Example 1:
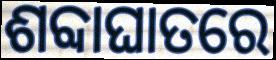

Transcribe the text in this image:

ଶବ୍ଦାଘାତରେ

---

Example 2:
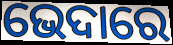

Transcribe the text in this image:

ଭେଦାରେ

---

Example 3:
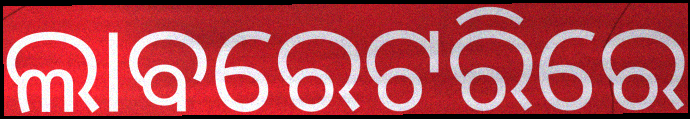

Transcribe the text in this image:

ଲାବରେଟରିରେ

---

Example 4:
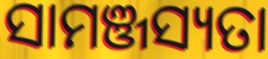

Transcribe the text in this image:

ସାମଞ୍ଜସ୍ୟତା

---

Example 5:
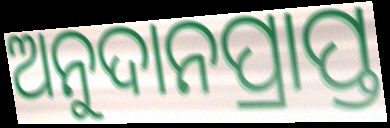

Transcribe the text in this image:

ଅନୁଦାନପ୍ରାପ୍ତ